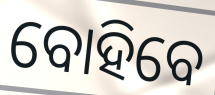
ବୋହିବେ